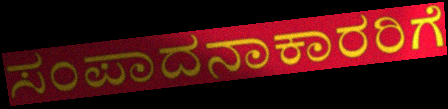
ಸಂಪಾದನಾಕಾರರಿಗೆ